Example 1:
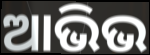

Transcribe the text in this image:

ଆଭିଭ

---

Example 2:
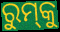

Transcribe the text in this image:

ରୁମ୍‍କୁ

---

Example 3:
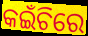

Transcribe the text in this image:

କଇଁଚିରେ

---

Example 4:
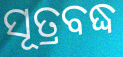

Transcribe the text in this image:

ସୂତ୍ରବଦ୍ଧ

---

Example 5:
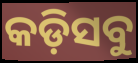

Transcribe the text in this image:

କଡ଼ିସବୁ